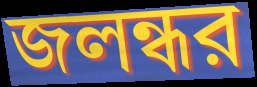
জলন্ধর